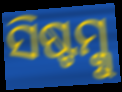
ସିଷ୍ଟମ୍କୁ